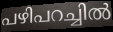
പഴിപറച്ചിൽ